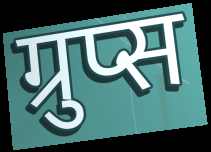
ग्रुप्स